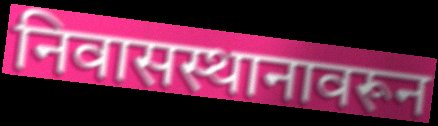
निवासस्थानावरून